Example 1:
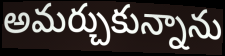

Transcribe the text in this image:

అమర్చుకున్నాను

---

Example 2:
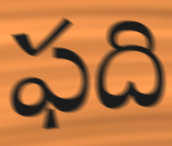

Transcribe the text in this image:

ఫది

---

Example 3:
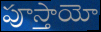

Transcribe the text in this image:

పూస్తాయో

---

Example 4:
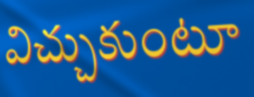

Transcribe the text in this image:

విచ్చుకుంటూ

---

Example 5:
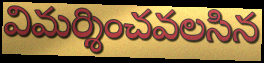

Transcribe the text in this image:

విమర్శించవలసిన